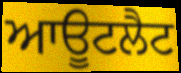
ਆਊਟਲੈਟ